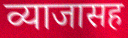
व्याजासह